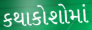
કથાકોશોમાં